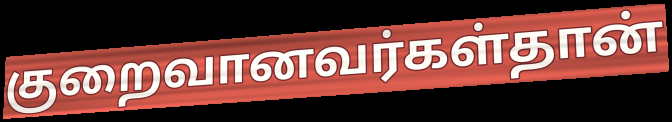
குறைவானவர்கள்தான்